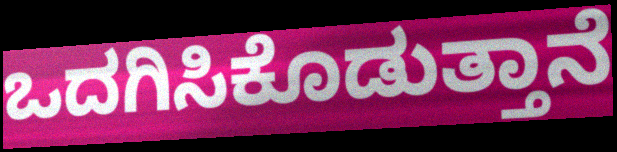
ಒದಗಿಸಿಕೊಡುತ್ತಾನೆ